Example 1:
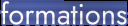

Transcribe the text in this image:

formations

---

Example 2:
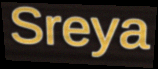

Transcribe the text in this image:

Sreya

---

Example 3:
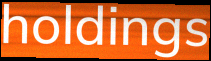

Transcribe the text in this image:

holdings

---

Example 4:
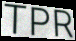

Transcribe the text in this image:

TPR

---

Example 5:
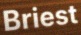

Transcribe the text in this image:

Briest